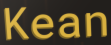
Kean